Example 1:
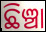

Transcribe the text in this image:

ଛିଞ୍ଚା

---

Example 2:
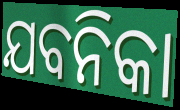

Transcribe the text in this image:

ଯବନିକା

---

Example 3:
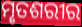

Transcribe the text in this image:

ମୃତଶରୀର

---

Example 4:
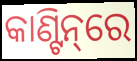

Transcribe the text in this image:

କାଣ୍ଟିନ୍‌ରେ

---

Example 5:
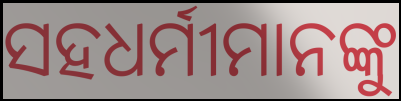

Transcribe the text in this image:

ସହଧର୍ମୀମାନଙ୍କୁ